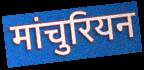
मांचुरियन